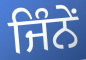
ਜਿੰਨੇਂ